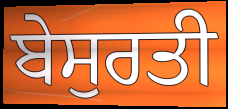
ਬੇਸੁਰਤੀ